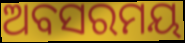
ଅବସରମୟ